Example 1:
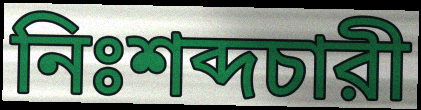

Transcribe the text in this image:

নিঃশব্দচারী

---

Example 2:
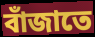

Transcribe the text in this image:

বাঁজাতে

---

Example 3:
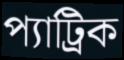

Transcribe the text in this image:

প্যাট্রিক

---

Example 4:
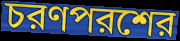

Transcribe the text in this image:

চরণপরশের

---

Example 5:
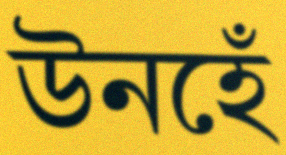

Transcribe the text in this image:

উনহেঁ